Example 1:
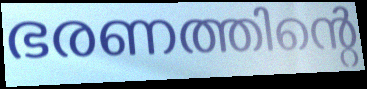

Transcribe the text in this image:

ഭരണത്തിന്റെ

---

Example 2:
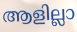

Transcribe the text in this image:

ആളില്ലാ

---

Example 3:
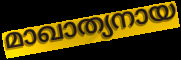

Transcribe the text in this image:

മാഖാത്യനായ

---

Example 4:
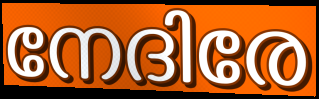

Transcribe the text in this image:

നേദിരേ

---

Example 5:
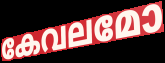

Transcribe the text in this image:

കേവലമോ